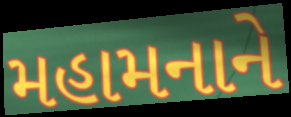
મહામનાને